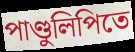
পাণ্ডুলিপিতে